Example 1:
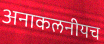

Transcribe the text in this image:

अनाकलनीयच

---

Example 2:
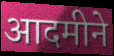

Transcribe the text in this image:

आदमीने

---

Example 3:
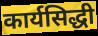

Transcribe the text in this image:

कार्यसिद्धी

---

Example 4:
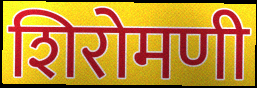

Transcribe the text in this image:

शिरोमणी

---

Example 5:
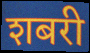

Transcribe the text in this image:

शबरी